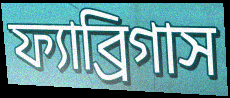
ফ্যাব্রিগাস